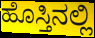
ಹೊಸ್ತಿನಲ್ಲಿ